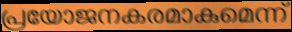
പ്രയോജനകരമാകുമെന്ന്